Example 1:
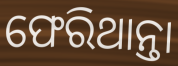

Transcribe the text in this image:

ଫେରିଥାନ୍ତା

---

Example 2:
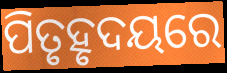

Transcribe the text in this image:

ପିତୃହୃଦୟରେ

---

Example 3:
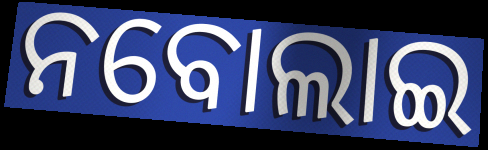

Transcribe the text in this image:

ନବୋଲାଇ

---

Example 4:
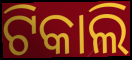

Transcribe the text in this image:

ଟିକାଲି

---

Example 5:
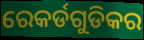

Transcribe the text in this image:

ରେକର୍ଡଗୁଡିକର